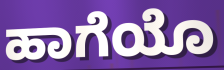
ಹಾಗೆಯೊ